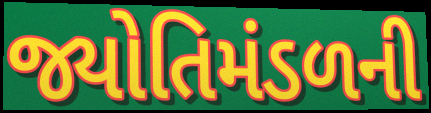
જ્યોતિમંડળની